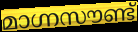
മാഗ്നസൗണ്ട്